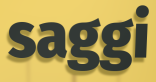
saggi